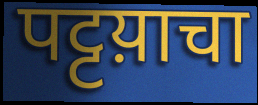
पट्टय़ाचा